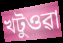
খটুওৱা